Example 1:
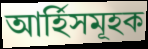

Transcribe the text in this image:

আৰ্হিসমূহক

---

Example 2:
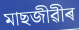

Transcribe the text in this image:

মাছজীৱীৰ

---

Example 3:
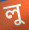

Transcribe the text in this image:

লু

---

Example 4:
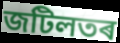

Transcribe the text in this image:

জটিলতৰ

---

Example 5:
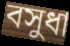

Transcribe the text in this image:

বসুধা